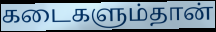
கடைகளும்தான்